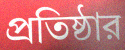
প্রতিষ্ঠার